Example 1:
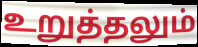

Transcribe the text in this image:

உறுத்தலும்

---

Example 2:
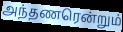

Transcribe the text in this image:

அந்தணரென்றும்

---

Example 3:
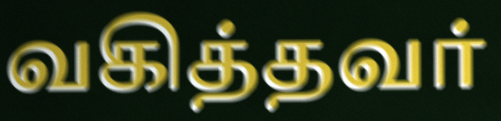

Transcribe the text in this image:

வகித்தவர்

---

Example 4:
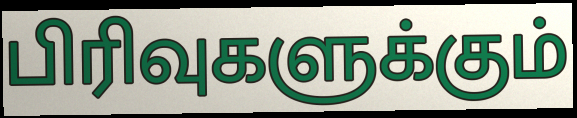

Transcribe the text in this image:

பிரிவுகளுக்கும்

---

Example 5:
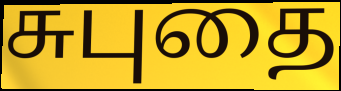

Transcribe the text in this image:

சுபுதை